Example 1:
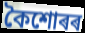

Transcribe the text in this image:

কৈশোৰৰ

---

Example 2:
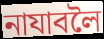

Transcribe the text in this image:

নাযাবলৈ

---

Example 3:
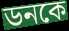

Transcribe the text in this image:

ডনকে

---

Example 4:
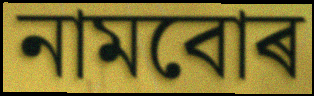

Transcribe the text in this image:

নামবোৰ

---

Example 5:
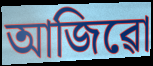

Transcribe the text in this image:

আজিৱো